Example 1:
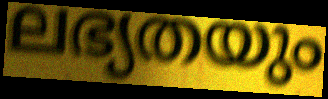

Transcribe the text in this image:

ലഭ്യതയും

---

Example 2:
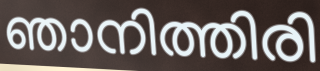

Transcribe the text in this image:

ഞാനിത്തിരി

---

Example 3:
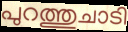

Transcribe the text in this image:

പുറത്തുചാടി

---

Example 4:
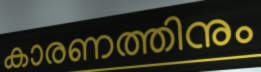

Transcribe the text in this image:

കാരണത്തിനും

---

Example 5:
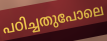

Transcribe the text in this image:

പഠിച്ചതുപോലെ